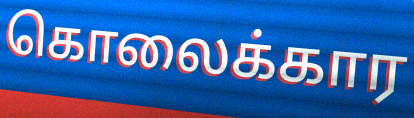
கொலைக்கார